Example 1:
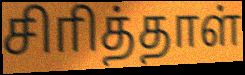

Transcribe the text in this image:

சிரித்தாள்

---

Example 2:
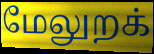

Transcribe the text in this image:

மேலுறக்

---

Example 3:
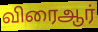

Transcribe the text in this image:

விரைஆர்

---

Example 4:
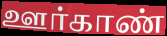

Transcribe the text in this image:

ஊர்காண்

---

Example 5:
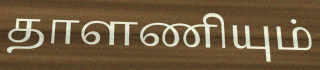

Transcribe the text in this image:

தாளணியும்